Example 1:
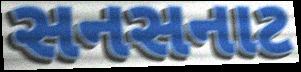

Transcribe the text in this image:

સનસનાટ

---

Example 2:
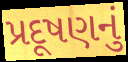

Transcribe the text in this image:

પ્રદૂષણનું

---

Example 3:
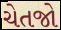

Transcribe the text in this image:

ચેતજો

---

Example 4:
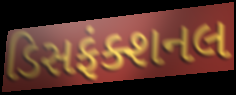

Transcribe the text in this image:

ડિસફંક્શનલ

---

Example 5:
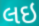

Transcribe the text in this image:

લઇ